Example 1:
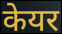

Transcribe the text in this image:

केयर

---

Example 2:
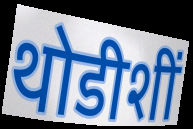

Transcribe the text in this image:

थोडीशीं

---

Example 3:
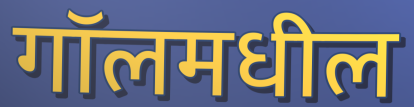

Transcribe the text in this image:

गॉलमधील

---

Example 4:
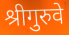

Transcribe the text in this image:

श्रीगुरुवे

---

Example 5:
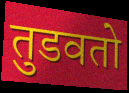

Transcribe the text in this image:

तुडवतो